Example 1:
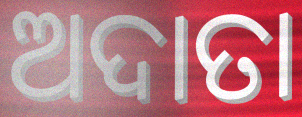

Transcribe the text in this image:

ଅଦାତା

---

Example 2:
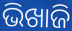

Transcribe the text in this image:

ଭିଖାଜି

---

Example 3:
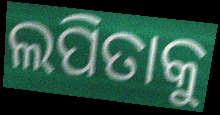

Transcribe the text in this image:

ଲପିତାକୁ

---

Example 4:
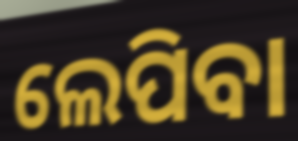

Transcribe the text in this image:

ଲେପିବା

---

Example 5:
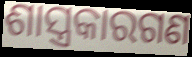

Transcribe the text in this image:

ଶାସ୍ତ୍ରକାରଗଣ